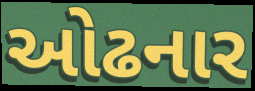
ઓઢનાર